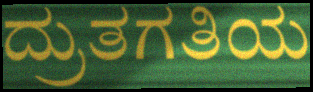
ದ್ರುತಗತಿಯ